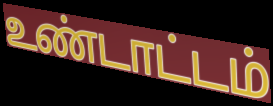
உண்டாட்டம்